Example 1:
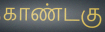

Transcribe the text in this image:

காண்டகு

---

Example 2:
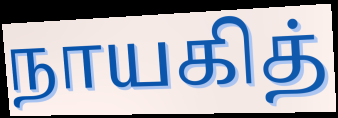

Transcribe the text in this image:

நாயகித்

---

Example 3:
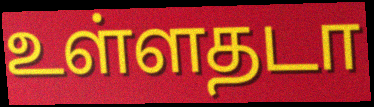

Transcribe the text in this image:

உள்ளதடா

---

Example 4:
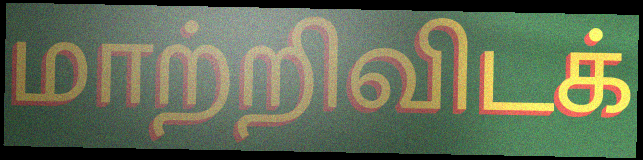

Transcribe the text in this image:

மாற்றிவிடக்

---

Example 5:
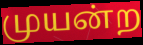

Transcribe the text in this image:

முயன்ற